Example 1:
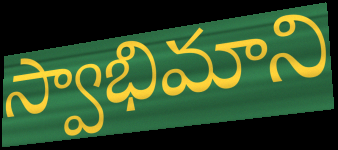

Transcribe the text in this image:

స్వాభిమాని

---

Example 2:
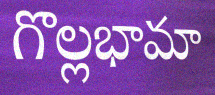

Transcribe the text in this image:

గొల్లభామా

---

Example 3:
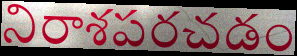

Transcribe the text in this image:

నిరాశపరచడం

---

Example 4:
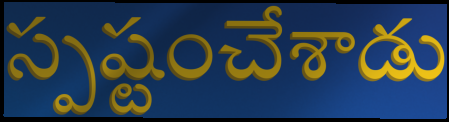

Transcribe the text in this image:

స్పష్టంచేశాడు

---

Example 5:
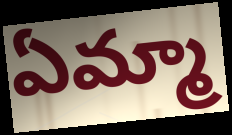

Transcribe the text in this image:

ఏమ్మా